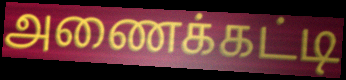
அணைக்கட்டி